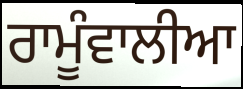
ਰਾਮੂੰਵਾਲੀਆ